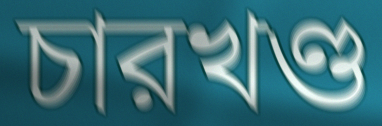
চারখণ্ড